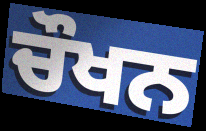
ਚੌਖਨ